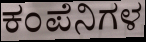
ಕಂಪೆನಿಗಳ